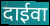
दाईवा